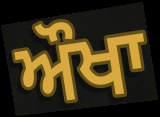
ਔਖਾ